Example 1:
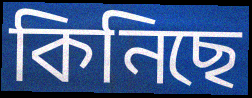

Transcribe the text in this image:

কিনিছে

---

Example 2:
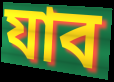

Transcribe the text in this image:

যাব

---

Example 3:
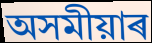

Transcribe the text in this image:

অসমীয়াৰ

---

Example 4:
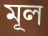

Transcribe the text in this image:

মূল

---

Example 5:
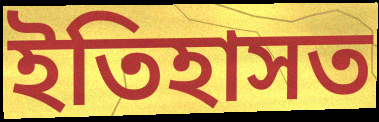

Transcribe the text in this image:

ইতিহাসত